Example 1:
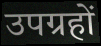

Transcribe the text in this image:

उपग्रहों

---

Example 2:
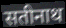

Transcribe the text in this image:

सतीनाथ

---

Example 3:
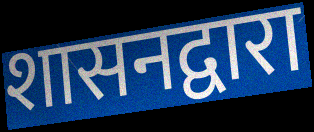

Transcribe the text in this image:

शासनद्वारा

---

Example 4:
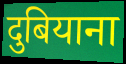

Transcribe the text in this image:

दुबियाना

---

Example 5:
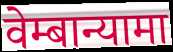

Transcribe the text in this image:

वेम्बान्यामा